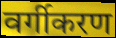
वर्गीकरण